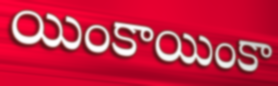
యింకాయింకా